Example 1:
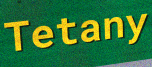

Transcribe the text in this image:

Tetany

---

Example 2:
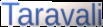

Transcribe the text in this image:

Taravali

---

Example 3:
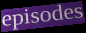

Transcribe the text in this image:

episodes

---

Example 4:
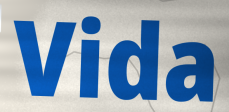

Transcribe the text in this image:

Vida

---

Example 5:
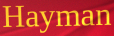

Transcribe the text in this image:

Hayman